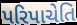
પરિપાચેતિ